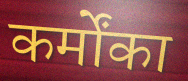
कर्मोंका